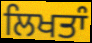
ਲਿਖਤਾੰ